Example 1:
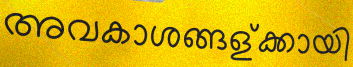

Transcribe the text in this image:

അവകാശങ്ങള്ക്കായി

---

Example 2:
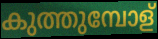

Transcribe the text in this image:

കുത്തുമ്പോള്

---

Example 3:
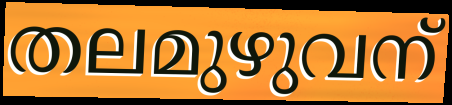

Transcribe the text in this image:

തലമുഴുവന്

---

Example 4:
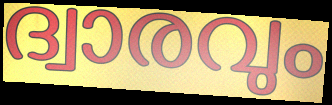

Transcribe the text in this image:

ദ്വാരവും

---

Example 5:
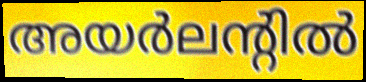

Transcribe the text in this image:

അയർലന്റിൽ